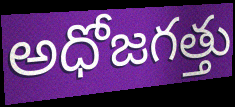
అధోజగత్తు